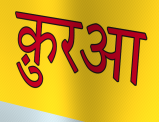
क़ुरआ